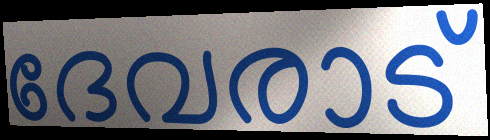
ദേവരാട്